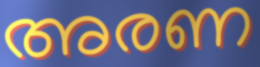
അരണ